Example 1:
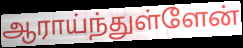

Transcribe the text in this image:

ஆராய்ந்துள்ளேன்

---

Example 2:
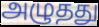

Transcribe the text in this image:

அழுதது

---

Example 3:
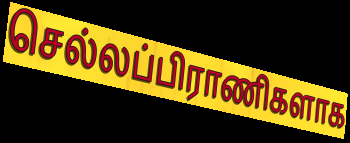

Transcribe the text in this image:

செல்லப்பிராணிகளாக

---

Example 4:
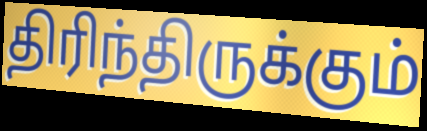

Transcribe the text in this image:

திரிந்திருக்கும்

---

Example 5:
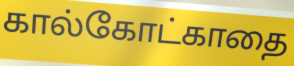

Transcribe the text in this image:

கால்கோட்காதை